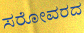
ಸರೋವರದ